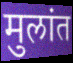
मुलांत